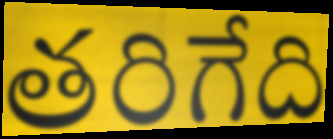
తరిగేది